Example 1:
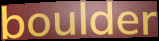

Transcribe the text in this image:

boulder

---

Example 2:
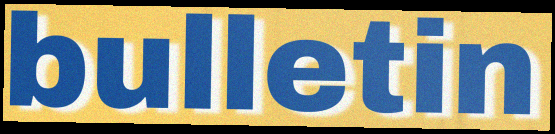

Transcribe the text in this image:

bulletin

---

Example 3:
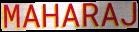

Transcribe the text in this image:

MAHARAJ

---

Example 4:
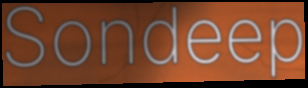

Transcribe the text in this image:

Sondeep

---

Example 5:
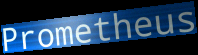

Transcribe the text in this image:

Prometheus